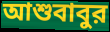
আশুবাবুর